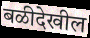
बळीदेखील